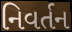
નિવર્તન